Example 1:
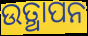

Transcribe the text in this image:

ଉତ୍ଥାପନ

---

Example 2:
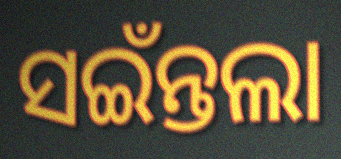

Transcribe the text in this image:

ସଇଁନ୍ତଲା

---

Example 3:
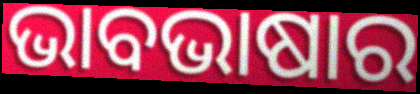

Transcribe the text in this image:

ଭାବଭାଷାର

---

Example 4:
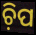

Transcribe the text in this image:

ଚ଼ିପ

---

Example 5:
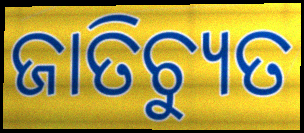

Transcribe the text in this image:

ଜାତିଚ୍ୟୁତ